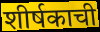
शीर्षकाची